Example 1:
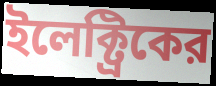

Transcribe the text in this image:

ইলেক্ট্রিকের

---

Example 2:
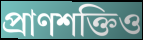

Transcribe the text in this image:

প্রাণশক্তিও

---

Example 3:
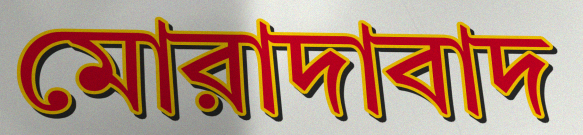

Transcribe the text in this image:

মোরাদাবাদ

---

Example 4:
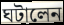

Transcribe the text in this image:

ঘটালেন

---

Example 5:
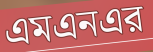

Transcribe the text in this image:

এমএনএর